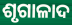
ଶୃଗାଳାଦ